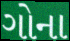
ગોના